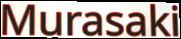
Murasaki